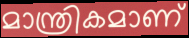
മാന്ത്രികമാണ്